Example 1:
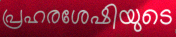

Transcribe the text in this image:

പ്രഹരശേഷിയുടെ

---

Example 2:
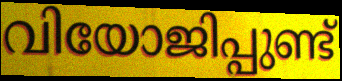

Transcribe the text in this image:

വിയോജിപ്പുണ്ട്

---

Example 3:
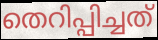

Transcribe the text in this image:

തെറിപ്പിച്ചത്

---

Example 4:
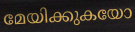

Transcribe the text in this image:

മേയിക്കുകയോ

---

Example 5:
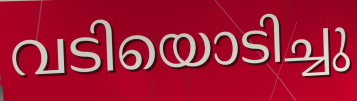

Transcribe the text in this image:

വടിയൊടിച്ചു